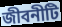
জীবনীটি